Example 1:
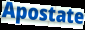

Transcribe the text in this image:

Apostate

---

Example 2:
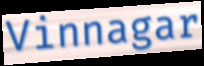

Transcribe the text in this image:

Vinnagar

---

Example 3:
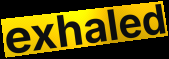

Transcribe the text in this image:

exhaled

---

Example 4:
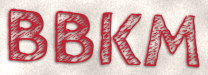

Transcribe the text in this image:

BBKM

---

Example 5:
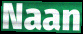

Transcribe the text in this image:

Naan